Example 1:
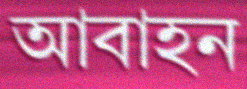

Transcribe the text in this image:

আবাহন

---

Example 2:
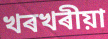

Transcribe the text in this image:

খৰখৰীয়া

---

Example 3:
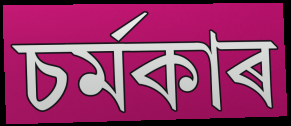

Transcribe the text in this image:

চৰ্মকাৰ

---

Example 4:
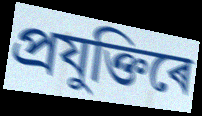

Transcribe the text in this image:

প্ৰযুক্তিৰে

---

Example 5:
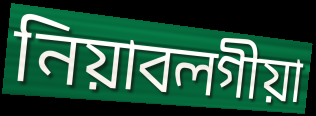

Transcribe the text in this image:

নিয়াবলগীয়া